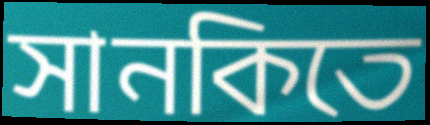
সানকিতে